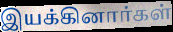
இயக்கினார்கள்